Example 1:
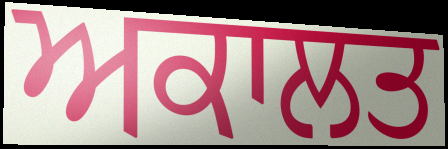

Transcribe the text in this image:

ਅਕਾਲਤ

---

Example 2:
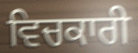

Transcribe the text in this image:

ਵਿਚਕਾਰੀ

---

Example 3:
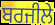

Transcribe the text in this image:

ਬਰਜੀਲੇ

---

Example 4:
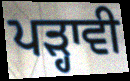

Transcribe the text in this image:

ਪੜ੍ਹਾਵੀ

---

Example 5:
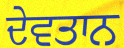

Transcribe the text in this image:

ਦੇਵਤਾਨ